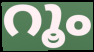
റൂം